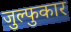
जुल्फुकार